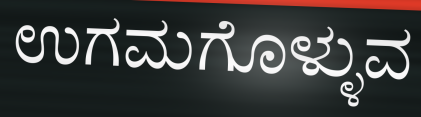
ಉಗಮಗೊಳ್ಳುವ